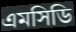
এমসিডি